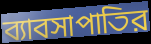
ব্যাবসাপাতির